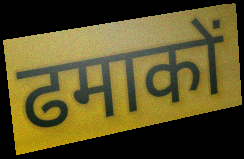
ढमाकों